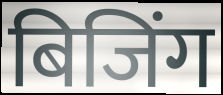
बिजिंग